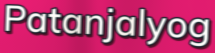
Patanjalyog